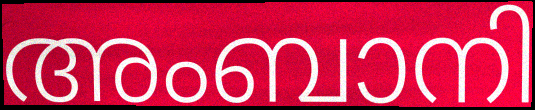
അംബാനി